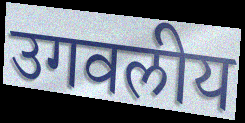
उगवलीय